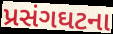
પ્રસંગઘટના